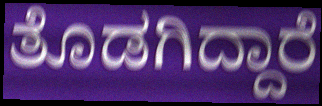
ತೊಡಗಿದ್ದಾರೆ